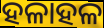
ହଳାହଳ